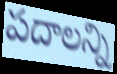
పదాలన్ని